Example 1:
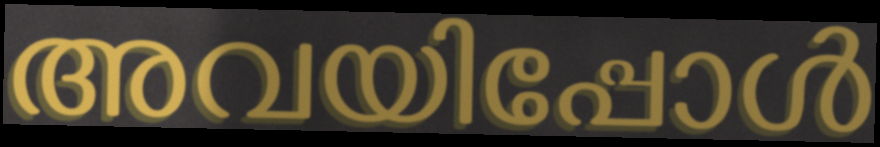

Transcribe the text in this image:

അവയിപ്പോൾ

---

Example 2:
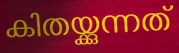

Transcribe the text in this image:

കിതയ്ക്കുന്നത്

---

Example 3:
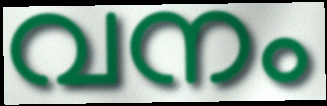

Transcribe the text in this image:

വനം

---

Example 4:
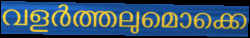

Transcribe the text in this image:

വളർത്തലുമൊക്കെ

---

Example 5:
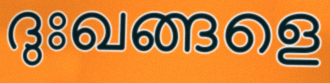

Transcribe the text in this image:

ദുഃഖങ്ങളെ